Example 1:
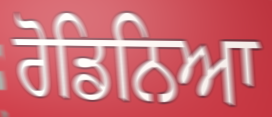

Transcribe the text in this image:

ਰੋਡਿਨਿਆ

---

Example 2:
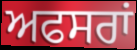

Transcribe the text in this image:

ਅਫਸਰਾਂ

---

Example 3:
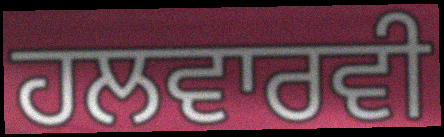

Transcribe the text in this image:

ਹਲਵਾਰਵੀ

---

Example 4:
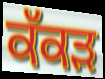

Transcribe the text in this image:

ਕੱਕੜ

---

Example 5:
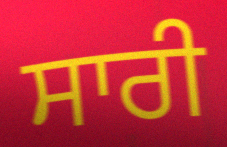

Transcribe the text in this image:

ਸਾਰੀ